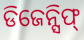
ଡିଜେନ୍ସିଫ୍